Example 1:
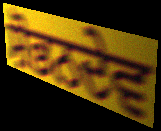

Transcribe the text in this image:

ਸ਼ੋਭਨਦੇਵ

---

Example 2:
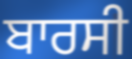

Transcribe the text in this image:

ਬਾਰਸੀ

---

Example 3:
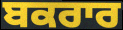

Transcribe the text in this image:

ਬਕਰਾਰ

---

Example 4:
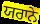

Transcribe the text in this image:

ਯਰਾਨੇ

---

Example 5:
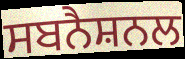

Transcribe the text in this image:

ਸਬਨੈਸ਼ਨਲ